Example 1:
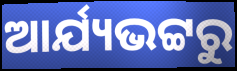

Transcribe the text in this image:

ଆର୍ଯ୍ୟଭଟ୍ଟରୁ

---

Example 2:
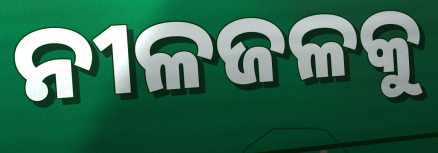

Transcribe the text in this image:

ନୀଳଜଳକୁ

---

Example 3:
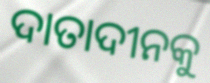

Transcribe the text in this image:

ଦାତାଦୀନକୁ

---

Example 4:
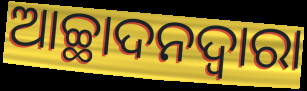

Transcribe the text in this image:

ଆଚ୍ଛାଦନଦ୍ୱାରା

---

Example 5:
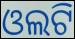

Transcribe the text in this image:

ଓଲଟି